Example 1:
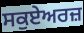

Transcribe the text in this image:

ਸਕੁਏਅਰਜ਼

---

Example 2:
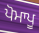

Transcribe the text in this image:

ਪੋਮਾਪੂ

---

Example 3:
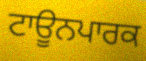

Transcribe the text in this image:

ਟਾਊਨਪਾਰਕ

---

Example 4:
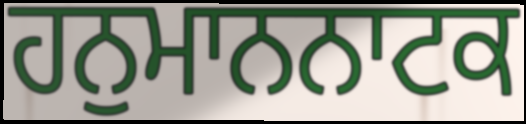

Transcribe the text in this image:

ਹਨੁਮਾਨਨਾਟਕ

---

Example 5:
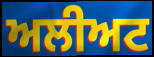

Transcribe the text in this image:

ਅਲੀਅਟ